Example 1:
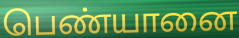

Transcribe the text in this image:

பெண்யானை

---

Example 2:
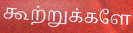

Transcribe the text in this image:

கூற்றுக்களே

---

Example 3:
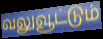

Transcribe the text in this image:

வலுவூட்டும்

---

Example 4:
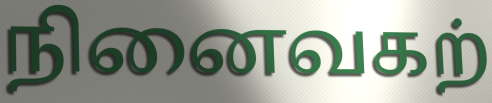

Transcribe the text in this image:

நினைவகற்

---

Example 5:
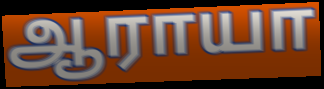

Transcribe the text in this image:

ஆராயா